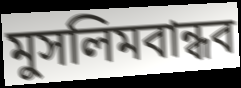
মুসলিমবান্ধব